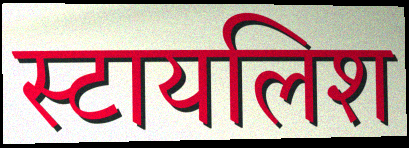
स्टायलिश